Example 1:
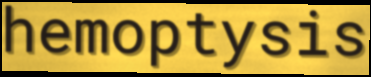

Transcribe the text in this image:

hemoptysis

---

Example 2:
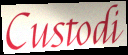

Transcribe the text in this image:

Custodi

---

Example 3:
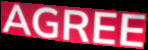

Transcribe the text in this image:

AGREE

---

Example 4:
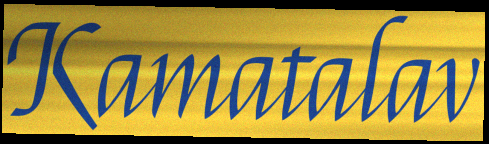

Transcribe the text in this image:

Kamatalav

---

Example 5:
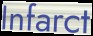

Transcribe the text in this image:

Infarct